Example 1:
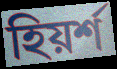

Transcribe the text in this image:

হিয়র্শ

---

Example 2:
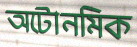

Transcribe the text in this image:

অটোনমিক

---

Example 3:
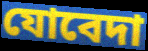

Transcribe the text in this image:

যোবেদা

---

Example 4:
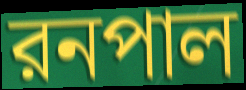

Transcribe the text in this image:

রনপাল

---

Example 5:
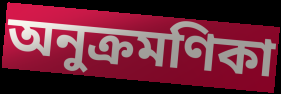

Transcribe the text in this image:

অনুক্রমণিকা